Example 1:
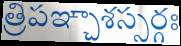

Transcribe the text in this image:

త్రిపఞ్చాశస్సర్గః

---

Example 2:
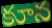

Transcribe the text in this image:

కూన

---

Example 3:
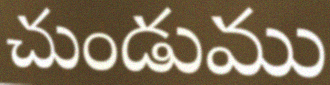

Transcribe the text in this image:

చుండుము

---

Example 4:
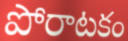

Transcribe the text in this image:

పోరాటకం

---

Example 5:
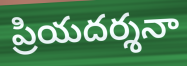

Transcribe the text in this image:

ప్రియదర్శనా